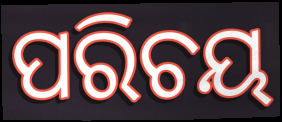
ପରିଚୟ